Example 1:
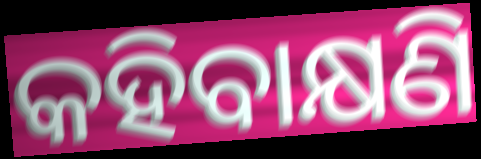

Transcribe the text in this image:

କହିବାକ୍ଷଣି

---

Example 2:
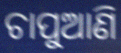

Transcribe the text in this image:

ଚାପୁଆଣି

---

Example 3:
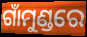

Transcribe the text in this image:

ଗାଁମୁଣ୍ଡରେ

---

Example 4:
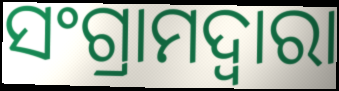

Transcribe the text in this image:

ସଂଗ୍ରାମଦ୍ଵାରା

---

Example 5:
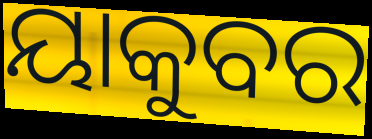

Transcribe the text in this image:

ୟାକୁବର